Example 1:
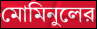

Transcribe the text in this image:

মোমিনুলের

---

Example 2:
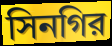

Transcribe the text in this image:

সিনগির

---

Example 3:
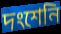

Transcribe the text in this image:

দংশেনি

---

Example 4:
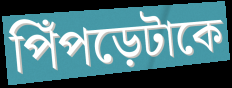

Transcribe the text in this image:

পিঁপড়েটাকে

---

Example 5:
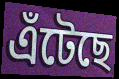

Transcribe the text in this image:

এঁটেছে